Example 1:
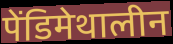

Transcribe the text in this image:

पेंडिमेथालीन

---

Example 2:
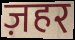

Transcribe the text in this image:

ज़हर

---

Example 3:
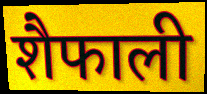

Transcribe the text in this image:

शैफाली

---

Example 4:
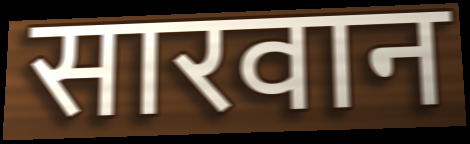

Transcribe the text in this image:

सारवान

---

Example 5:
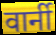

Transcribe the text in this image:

वार्नी